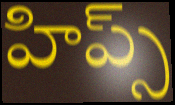
హిప్స్